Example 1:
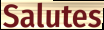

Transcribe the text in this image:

Salutes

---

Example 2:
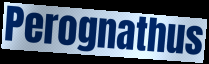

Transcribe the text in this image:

Perognathus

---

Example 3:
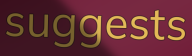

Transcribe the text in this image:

suggests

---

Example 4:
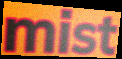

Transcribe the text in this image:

mist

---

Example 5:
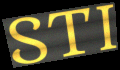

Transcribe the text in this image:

STI